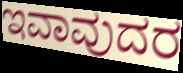
ಇವಾವುದರ